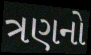
ત્રણનો